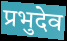
प्रभुदेव